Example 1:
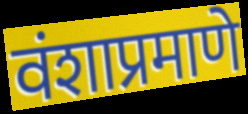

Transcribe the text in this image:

वंशाप्रमाणे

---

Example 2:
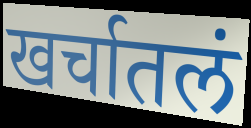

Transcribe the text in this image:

खर्चातलं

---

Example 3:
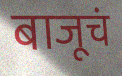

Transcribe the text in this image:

बाजूचं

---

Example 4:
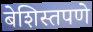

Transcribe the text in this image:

बेशिस्तपणे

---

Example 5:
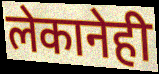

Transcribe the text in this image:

लेकानेही